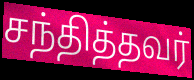
சந்தித்தவர்